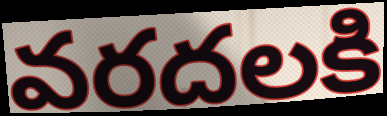
వరదలకి